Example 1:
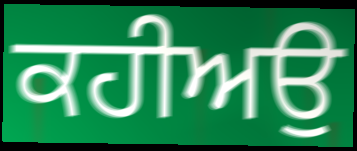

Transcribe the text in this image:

ਕਹੀਅਉ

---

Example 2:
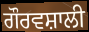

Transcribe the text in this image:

ਗੌਰਵਸ਼ਾਲੀ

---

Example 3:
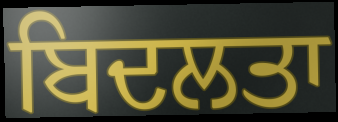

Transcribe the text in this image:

ਬਿਦਲਤਾ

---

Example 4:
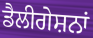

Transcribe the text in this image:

ਡੈਲੀਗੇਸ਼ਨਾਂ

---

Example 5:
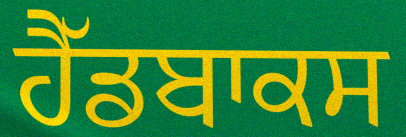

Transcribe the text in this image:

ਹੈੱਡਬਾਕਸ